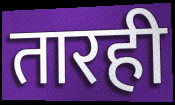
तारही